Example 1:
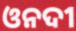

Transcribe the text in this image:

ଓନଦୀ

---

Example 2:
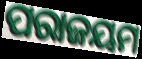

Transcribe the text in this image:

ପରାଜୟମ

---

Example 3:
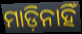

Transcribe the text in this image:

ମାଡ଼ିନାହିଁ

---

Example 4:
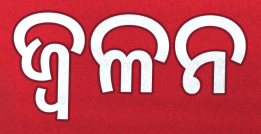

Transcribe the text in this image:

ଜ୍ଵଳନ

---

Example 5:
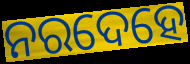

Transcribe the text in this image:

ନରଦେହେ